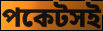
পকেটসই